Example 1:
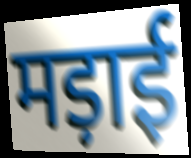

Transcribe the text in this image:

मड़ाई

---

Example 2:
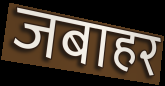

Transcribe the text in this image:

जबाहर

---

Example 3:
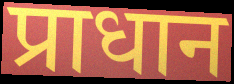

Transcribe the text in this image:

प्राधान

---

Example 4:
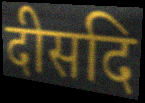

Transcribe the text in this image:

दीसदि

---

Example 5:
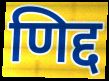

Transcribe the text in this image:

णिद्द